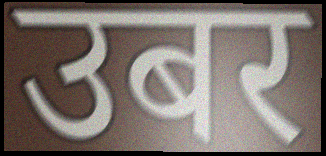
उबर